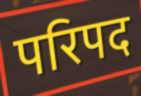
परिपद